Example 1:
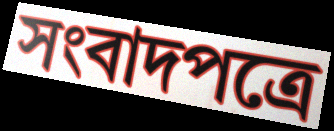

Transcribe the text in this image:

সংবাদপত্রে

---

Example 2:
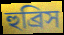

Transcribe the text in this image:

হুব্রিস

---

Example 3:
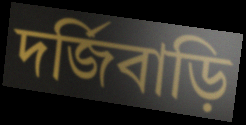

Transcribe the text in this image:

দর্জিবাড়ি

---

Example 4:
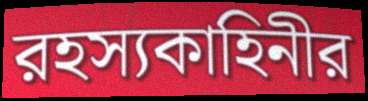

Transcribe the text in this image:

রহস্যকাহিনীর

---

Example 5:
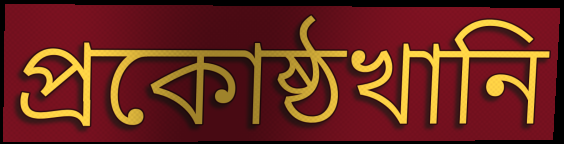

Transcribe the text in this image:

প্রকোষ্ঠখানি